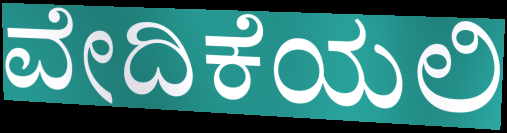
ವೇದಿಕೆಯಲಿ